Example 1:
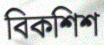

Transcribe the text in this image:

বিকশিশ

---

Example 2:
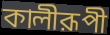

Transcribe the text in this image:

কালীরূপী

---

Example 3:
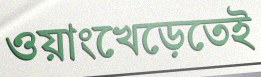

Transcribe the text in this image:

ওয়াংখেড়েতেই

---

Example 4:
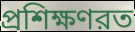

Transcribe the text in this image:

প্রশিক্ষণরত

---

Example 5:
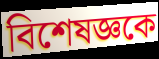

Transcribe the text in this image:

বিশেষজ্ঞকে